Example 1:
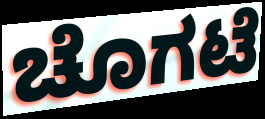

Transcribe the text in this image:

ಚೊಗಟೆ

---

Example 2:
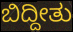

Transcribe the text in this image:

ಬಿದ್ದೀತು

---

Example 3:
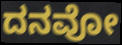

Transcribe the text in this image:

ದನವೋ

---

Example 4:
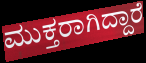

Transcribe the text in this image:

ಮುಕ್ತರಾಗಿದ್ದಾರೆ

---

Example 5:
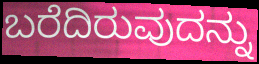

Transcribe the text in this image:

ಬರೆದಿರುವುದನ್ನು